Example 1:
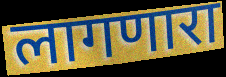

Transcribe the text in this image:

लागणारा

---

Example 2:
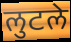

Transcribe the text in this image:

लुटले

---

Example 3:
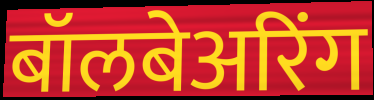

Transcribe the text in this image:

बॉलबेअरिंग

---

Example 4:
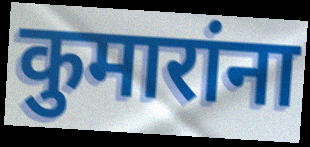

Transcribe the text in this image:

कुमारांना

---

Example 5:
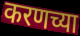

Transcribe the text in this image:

करणच्या